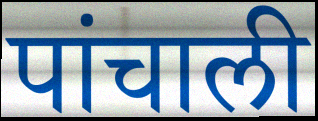
पांचाली